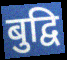
बुद्वि